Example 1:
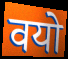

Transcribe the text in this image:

वयो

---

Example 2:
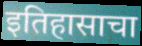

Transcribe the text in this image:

इतिहासाचा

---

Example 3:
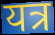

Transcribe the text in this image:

यत्र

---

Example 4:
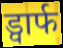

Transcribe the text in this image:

ड्वार्फ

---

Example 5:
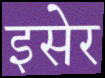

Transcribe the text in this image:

इसेर